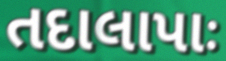
તદાલાપાઃ